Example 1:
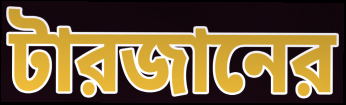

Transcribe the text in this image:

টারজানের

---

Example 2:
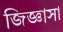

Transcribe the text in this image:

জিজ্ঞাসা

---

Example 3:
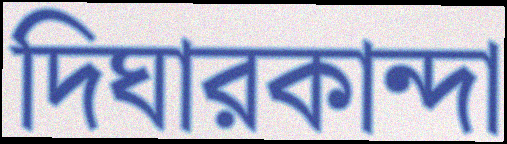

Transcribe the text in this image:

দিঘারকান্দা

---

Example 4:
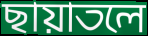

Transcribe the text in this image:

ছায়াতলে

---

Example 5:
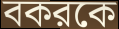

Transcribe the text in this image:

বকরকে